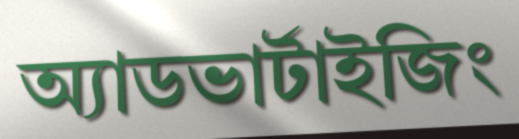
অ্যাডভার্টাইজিং